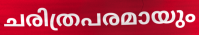
ചരിത്രപരമായും